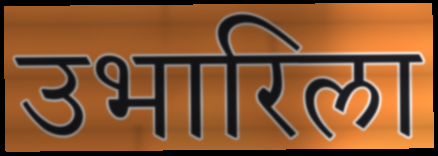
उभारिला